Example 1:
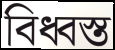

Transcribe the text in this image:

বিধ্বস্ত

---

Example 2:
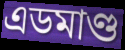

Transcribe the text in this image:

এডমাণ্ড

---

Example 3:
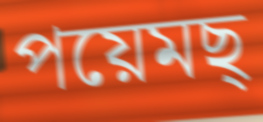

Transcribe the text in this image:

পয়েমছ্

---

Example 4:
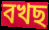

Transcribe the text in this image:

বখছ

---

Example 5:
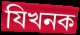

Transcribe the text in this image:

যিখনক